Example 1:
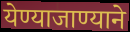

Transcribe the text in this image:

येण्याजाण्याने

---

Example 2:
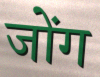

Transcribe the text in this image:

जोंग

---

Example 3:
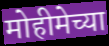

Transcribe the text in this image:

मोहीमेच्या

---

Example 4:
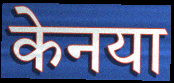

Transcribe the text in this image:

केनया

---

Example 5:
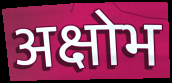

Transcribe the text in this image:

अक्षोभ